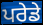
ਪਰੇਡੇ